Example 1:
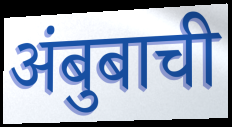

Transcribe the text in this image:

अंबुबाची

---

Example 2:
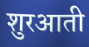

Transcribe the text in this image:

शुरआती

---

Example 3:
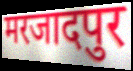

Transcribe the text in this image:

मरजादपुर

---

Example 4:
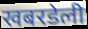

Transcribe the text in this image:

खबरडेली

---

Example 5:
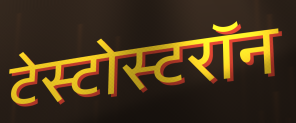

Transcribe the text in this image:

टेस्टोस्टरॉन